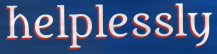
helplessly